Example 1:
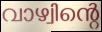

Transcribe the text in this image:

വാഴ്വിന്റെ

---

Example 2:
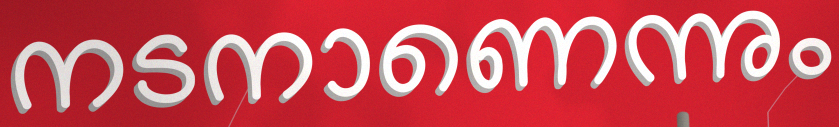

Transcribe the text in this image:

നടനാണെന്നും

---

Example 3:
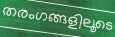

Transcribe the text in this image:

തരംഗങ്ങളിലൂടെ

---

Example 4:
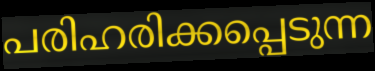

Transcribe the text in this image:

പരിഹരിക്കപ്പെടുന്ന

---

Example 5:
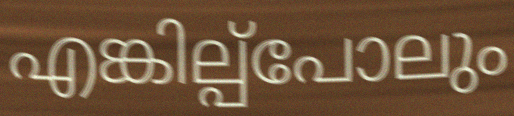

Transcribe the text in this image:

എങ്കില്പ്പോലും